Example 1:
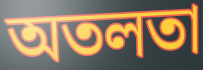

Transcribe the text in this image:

অতলতা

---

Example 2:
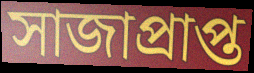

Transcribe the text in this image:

সাজাপ্রাপ্ত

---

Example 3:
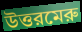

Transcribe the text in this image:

উত্তরমেরু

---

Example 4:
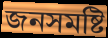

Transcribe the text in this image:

জনসমষ্টি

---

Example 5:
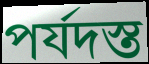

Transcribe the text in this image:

পর্যদস্ত